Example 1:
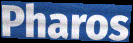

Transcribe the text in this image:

Pharos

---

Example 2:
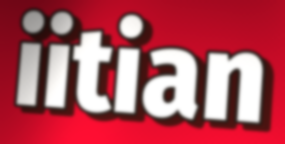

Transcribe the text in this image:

iitian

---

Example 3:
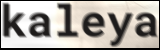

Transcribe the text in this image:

kaleya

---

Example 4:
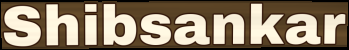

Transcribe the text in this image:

Shibsankar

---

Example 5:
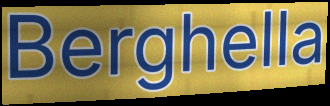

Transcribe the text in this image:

Berghella